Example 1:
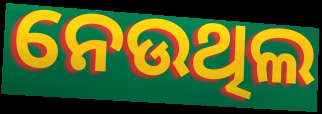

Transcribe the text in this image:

ନେଉଥିଲ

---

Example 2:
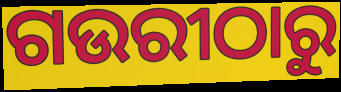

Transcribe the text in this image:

ଗଉରୀଠାରୁ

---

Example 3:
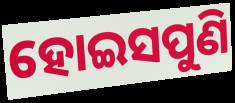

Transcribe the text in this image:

ହୋଇସପୁଣି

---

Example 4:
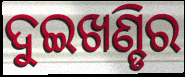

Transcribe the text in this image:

ଦୁଇଖଣ୍ଡିର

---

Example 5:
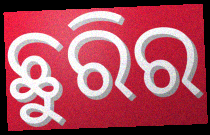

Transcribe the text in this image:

ଛୁରିର